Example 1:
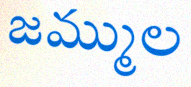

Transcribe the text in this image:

జమ్ముల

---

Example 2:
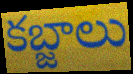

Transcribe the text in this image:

కబ్జాలు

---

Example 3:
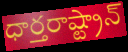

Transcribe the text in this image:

ధార్తరాష్ట్రాన్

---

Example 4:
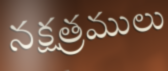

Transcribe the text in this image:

నక్షత్రములు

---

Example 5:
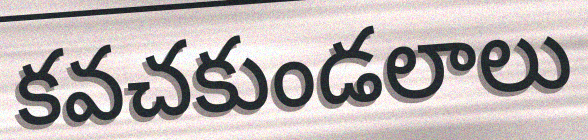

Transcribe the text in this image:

కవచకుండలాలు